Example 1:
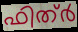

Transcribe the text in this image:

ഫിത്ർ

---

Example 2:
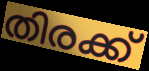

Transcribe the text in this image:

തിരക്ക്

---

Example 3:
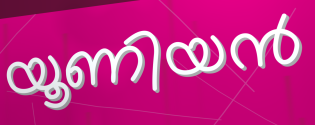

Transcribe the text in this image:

യൂണിയൻ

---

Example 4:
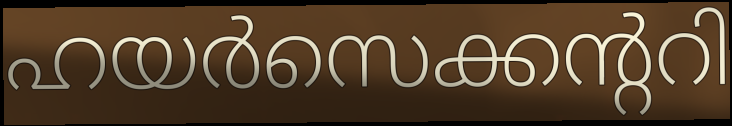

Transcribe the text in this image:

ഹയർസെക്കന്ററി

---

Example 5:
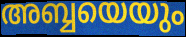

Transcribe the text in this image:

അബ്ബയെയും